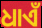
ଧାଏଁ